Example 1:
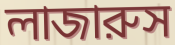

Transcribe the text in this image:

লাজারুস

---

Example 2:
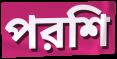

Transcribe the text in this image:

পরশি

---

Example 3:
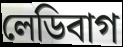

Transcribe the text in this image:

লেডিবাগ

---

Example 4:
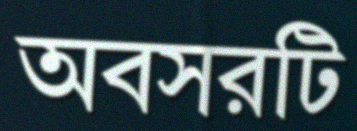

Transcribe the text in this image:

অবসরটি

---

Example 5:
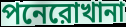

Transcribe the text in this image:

পনেরোখানা